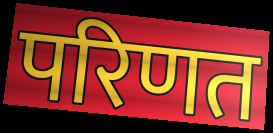
परिणत